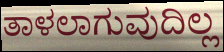
ತಾಳಲಾಗುವುದಿಲ್ಲ